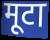
मूटा